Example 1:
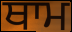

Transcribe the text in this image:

ਥਾਮ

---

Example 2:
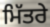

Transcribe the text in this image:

ਮਿੱਤਰੇ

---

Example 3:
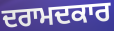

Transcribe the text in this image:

ਦਰਾਮਦਕਾਰ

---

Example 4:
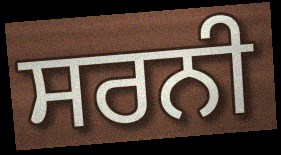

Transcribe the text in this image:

ਸਰਨੀ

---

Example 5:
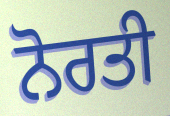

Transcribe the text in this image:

ਨੋਰਤੀ